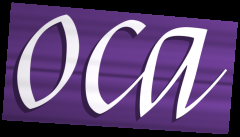
oca